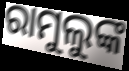
ରାମୁଲୁଙ୍କ